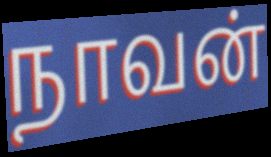
நாவன்